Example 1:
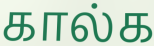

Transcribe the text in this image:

கால்க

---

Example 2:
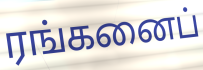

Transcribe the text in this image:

ரங்கனைப்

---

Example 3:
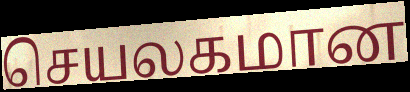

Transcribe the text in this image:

செயலகமான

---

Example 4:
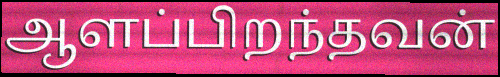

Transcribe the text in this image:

ஆளப்பிறந்தவன்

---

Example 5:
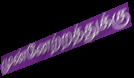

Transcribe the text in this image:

முன்னேற்றத்துக்கு